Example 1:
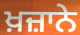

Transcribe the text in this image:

ਖ਼ਜ਼ਾਨੇ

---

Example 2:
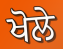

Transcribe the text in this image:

ਖੋਲੇ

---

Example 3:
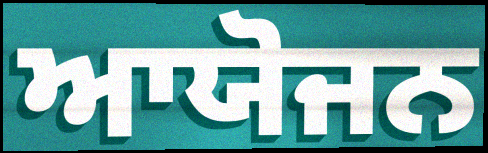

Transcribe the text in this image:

ਆਯੋਜਨ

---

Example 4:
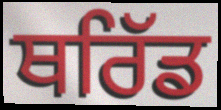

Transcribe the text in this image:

ਥਰਿੱਡ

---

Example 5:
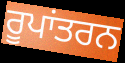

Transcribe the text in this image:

ਰੂਪਾਂਤਰਨ